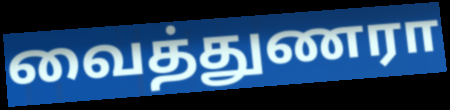
வைத்துணரா